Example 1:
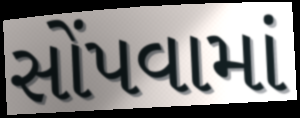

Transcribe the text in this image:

સોંપવામાં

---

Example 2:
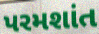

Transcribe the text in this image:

પરમશાંત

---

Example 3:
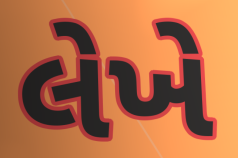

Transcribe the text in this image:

લેખે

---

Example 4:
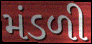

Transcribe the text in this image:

મંડળી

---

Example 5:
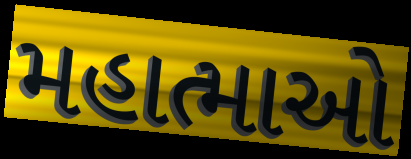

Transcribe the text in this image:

મહાત્માઓ